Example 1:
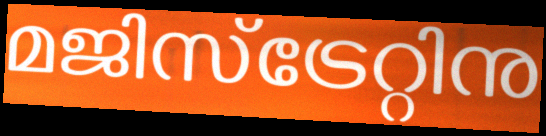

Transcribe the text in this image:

മജിസ്ട്രേറ്റിനു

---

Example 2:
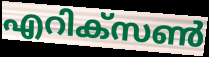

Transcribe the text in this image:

എറിക്സൺ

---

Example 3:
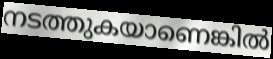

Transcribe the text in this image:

നടത്തുകയാണെങ്കിൽ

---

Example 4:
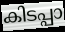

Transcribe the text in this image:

കിടപ്പാ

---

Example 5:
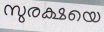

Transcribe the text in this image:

സുരക്ഷയെ